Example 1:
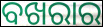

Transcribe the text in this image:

ବଖରାର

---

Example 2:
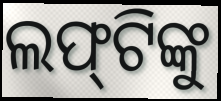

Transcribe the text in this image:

ଲଫ୍‌ଟିଙ୍କୁ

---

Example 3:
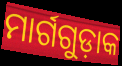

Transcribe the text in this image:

ମାର୍ଗଗୁଡ଼ାକ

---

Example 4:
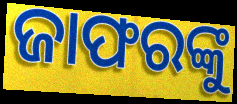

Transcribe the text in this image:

ଜାଫରଙ୍କୁ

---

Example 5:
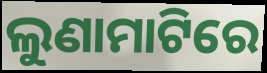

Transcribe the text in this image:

ଲୁଣାମାଟିରେ